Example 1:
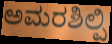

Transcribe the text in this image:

ಅಮರಶಿಲ್ಪಿ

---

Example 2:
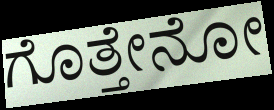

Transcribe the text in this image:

ಗೊತ್ತೇನೋ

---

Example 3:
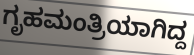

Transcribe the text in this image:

ಗೃಹಮಂತ್ರಿಯಾಗಿದ್ದ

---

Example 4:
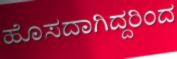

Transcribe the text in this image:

ಹೊಸದಾಗಿದ್ದರಿಂದ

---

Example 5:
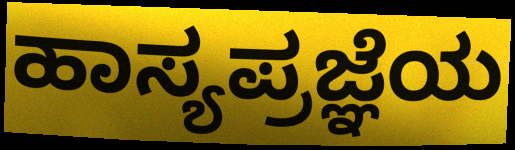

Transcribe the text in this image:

ಹಾಸ್ಯಪ್ರಜ್ಞೆಯ